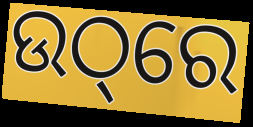
ଉଠ୍‌ରେ